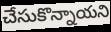
చేసుకొన్నాయని